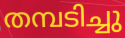
തമ്പടിച്ചു